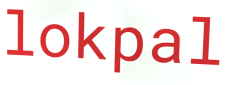
lokpal